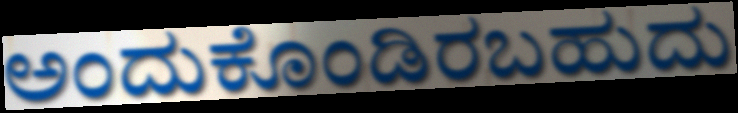
ಅಂದುಕೊಂಡಿರಬಹುದು